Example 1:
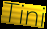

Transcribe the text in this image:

Tini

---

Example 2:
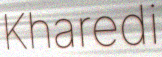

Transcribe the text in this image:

Kharedi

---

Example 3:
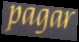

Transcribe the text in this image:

pagar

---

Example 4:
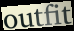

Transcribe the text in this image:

outfit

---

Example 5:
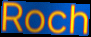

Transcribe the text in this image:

Roch